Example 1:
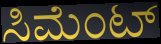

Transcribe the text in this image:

ಸಿಮೆಂಟ್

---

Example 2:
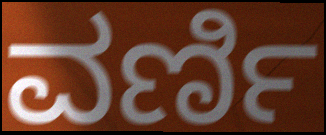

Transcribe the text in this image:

ವರ್ಣಿ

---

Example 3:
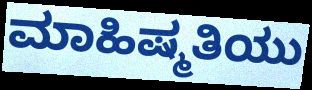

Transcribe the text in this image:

ಮಾಹಿಷ್ಮತಿಯು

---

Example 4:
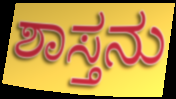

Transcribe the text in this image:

ಶಾಸ್ತನು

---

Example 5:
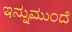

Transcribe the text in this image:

ಇನ್ನುಮುಂದೆ